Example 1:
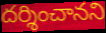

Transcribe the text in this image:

దర్శించానని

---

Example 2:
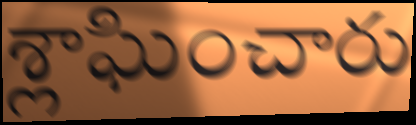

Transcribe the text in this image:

శ్లాఘించారు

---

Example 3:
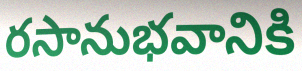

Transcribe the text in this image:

రసానుభవానికి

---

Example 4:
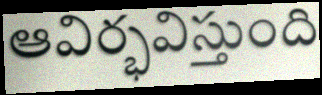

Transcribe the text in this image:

ఆవిర్భవిస్తుంది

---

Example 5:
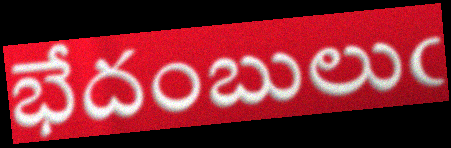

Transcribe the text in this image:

భేదంబులుఁ